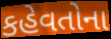
કહેવતોના